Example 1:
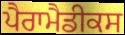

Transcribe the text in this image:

ਪੈਰਾਮੈਡੀਕਸ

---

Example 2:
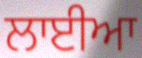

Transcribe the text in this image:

ਲਾਈਆ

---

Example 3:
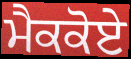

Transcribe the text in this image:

ਮੈਕਕੋਏ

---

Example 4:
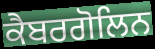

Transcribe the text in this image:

ਕੈਬਰਗੋਲਿਨ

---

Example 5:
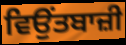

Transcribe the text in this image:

ਵਿਉਂਤਬਾਜ਼ੀ